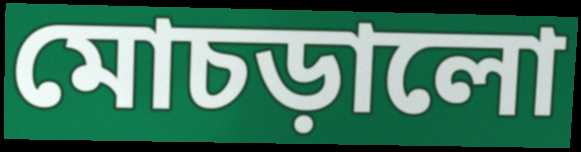
মোচড়ালো